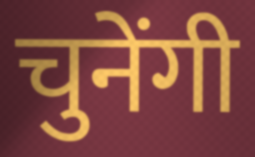
चुनेंगी